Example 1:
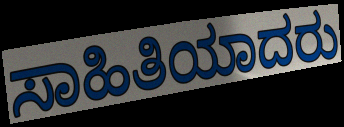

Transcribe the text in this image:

ಸಾಹಿತಿಯಾದರು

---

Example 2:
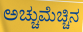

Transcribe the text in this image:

ಅಚ್ಚುಮೆಚ್ಚಿನ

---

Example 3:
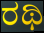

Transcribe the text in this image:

ರಥಿ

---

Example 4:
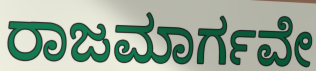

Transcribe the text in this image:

ರಾಜಮಾರ್ಗವೇ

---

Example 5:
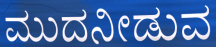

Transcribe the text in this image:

ಮುದನೀಡುವ